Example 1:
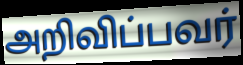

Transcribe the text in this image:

அறிவிப்பவர்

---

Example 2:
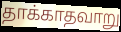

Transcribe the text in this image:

தாக்காதவாறு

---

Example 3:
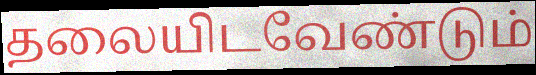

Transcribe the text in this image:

தலையிடவேண்டும்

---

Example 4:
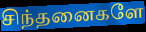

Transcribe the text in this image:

சிந்தனைகளே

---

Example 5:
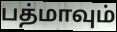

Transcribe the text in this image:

பத்மாவும்